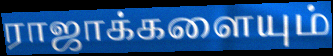
ராஜாக்களையும்